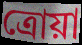
ত্রোয়া